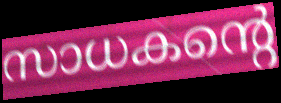
സാധകന്റെ